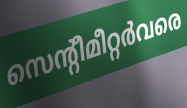
സെന്റീമീറ്റർവരെ